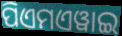
ପିଏମଏୱାଇ